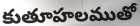
కుతూహలముతో